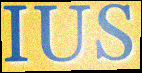
IUS